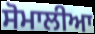
ਸੋਮਾਲੀਆ